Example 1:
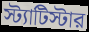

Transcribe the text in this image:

স্ট্যাটিস্টার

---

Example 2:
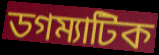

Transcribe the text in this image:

ডগম্যাটিক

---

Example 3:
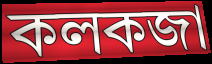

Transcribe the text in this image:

কলকজা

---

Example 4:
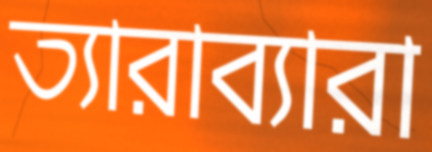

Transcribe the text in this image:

ত্যারাব্যারা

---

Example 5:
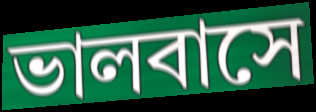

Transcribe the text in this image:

ভালবাসে